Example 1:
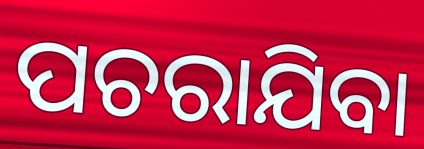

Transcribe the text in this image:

ପଚରାଯିବା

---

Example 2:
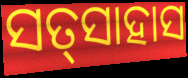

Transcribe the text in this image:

ସତ୍‌ସାହାସ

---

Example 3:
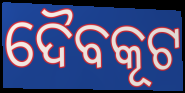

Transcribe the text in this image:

ଦୈବକୂଟ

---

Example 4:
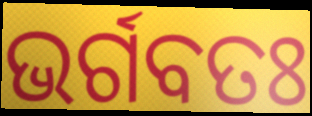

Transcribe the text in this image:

ଭର୍ଗବତଃ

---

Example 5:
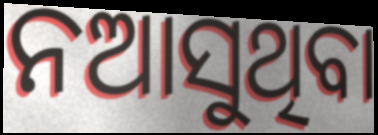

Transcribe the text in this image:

ନଆସୁଥିବା